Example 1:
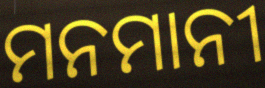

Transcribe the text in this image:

ମନମାନୀ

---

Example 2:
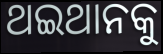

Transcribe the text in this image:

ଥଇଥାନକୁ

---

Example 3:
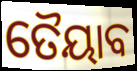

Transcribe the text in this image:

ତୈୟାବ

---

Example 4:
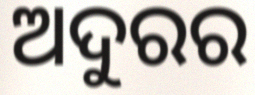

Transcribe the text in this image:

ଅଦୁରର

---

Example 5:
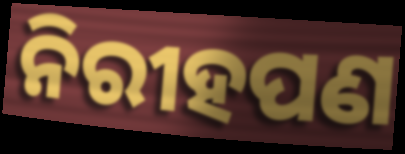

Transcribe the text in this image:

ନିରୀହପଣ